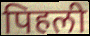
पिहली